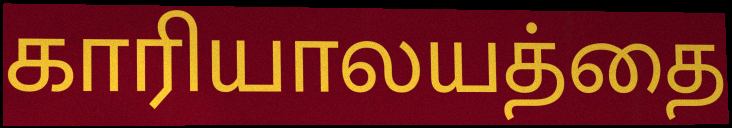
காரியாலயத்தை